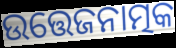
ଉତ୍ତେଜନାତ୍ମକ